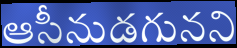
ఆసీనుడగునని